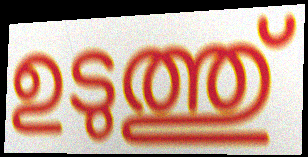
ഉടുത്തു്